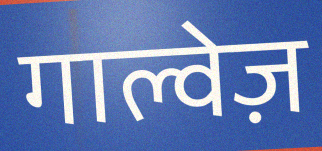
गाल्वेज़